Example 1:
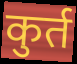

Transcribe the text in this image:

कुर्त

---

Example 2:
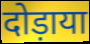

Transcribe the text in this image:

दोड़ाया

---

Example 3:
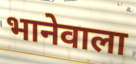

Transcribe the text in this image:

भानेवाला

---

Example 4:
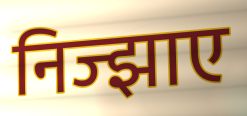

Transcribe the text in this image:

निज्झाए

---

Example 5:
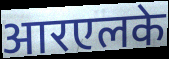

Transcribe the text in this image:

आरएलके